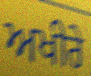
ਅਖੀਰੇ